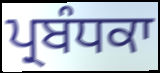
ਪ੍ਰਬੰਧਕਾ